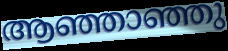
ആഞ്ഞാഞ്ഞു